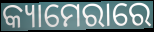
କ୍ୟାମେରାରେ